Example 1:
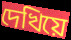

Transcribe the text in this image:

দেখিয়ে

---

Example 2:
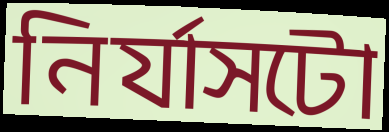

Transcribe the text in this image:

নিৰ্যাসটো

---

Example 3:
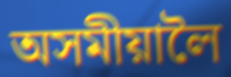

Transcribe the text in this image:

অসমীয়ালৈ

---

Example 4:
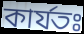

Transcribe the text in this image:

কাৰ্যতঃ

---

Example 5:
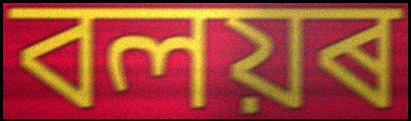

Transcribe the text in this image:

বলয়ৰ